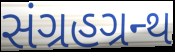
સંગ્રહગ્રન્થ